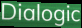
Dialogic